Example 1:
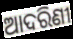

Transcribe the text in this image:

ଆଦରିଣୀ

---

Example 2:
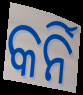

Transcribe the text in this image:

କର୍ନି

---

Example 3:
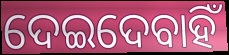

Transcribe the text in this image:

ଦେଇଦେବାହିଁ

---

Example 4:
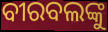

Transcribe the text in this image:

ବୀରବଲଙ୍କୁ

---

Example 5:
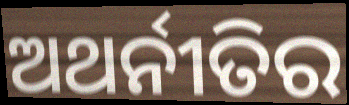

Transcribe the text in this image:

ଅଥର୍ନୀତିର